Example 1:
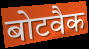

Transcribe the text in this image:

बोटवैक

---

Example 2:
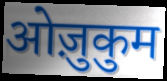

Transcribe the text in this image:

ओज़ुकुम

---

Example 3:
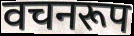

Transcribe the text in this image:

वचनरूप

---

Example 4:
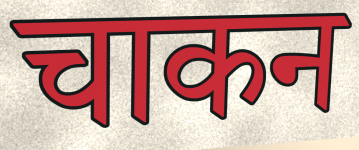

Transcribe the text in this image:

चाकन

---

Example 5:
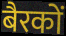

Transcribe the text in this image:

बैरकों